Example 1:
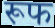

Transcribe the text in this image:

रूफ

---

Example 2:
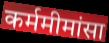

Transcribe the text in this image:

कर्ममीमांसा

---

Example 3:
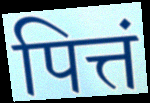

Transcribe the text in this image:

पित्तं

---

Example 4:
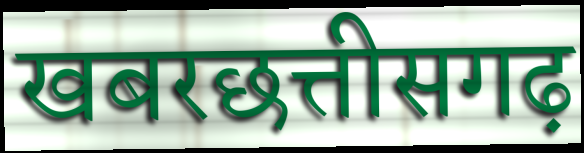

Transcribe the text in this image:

खबरछत्तीसगढ़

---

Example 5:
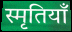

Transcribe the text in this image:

स्मृतियाँ